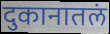
दुकानातलं